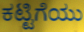
ಕಟ್ಟಿಗೆಯು